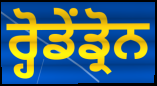
ਰ੍ਹੋਡੇਂਡ੍ਰੋਨ